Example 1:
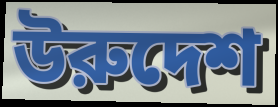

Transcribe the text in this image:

উরুদেশ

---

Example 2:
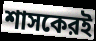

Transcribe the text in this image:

শাসকেরই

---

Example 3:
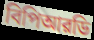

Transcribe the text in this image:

বিপিআরডি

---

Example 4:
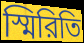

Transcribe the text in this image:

স্মিরিতি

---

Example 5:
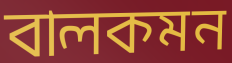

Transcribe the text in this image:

বালকমন